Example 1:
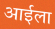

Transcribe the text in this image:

आईला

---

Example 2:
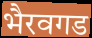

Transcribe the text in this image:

भैरवगड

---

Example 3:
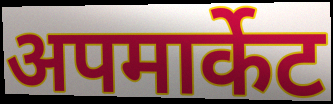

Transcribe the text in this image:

अपमार्केट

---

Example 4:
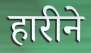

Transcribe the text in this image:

हारीने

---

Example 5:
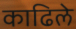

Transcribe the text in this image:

काढिले